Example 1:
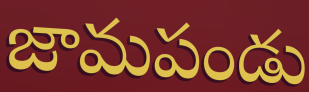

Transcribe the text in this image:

జామపండు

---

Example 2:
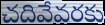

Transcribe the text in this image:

చదివేవరకు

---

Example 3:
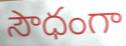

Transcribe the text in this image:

సౌధంగా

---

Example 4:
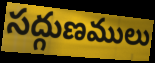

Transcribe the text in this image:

సద్గుణములు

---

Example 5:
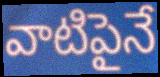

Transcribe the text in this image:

వాటిపైనే